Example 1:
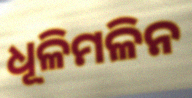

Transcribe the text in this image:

ଧୂଳିମଳିନ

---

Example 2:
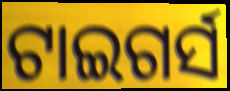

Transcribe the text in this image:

ଟାଇଗର୍ସ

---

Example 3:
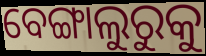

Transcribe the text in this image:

ବେଙ୍ଗାଲୁରୁକୁ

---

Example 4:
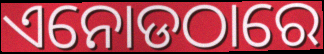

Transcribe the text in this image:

ଏନୋଡଠାରେ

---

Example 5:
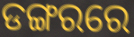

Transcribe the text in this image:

ଡଙ୍ଗରରେ